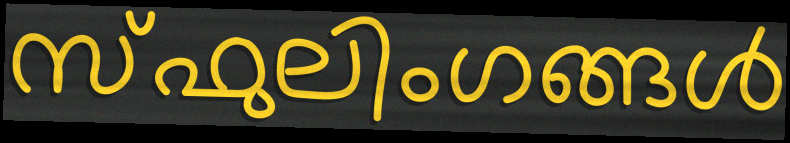
സ്ഫുലിംഗങ്ങൾ